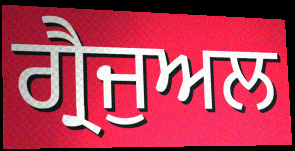
ਗ੍ਰੈਜੁਅਲ